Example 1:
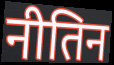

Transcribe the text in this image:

नीतिन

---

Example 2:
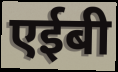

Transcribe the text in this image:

एईबी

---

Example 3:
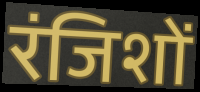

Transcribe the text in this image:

रंजिशों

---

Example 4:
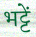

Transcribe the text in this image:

भट्टें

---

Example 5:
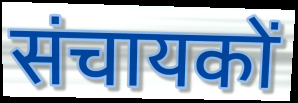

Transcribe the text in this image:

संचायकों